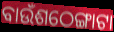
ବାଉଁଶଠେଙ୍ଗାଟା